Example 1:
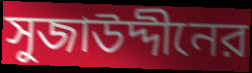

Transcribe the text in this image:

সুজাউদ্দীনের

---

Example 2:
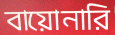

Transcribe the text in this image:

বায়োনারি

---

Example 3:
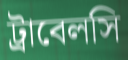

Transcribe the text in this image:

ট্রাবেলসি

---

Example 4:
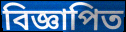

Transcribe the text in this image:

বিজ্ঞাপিত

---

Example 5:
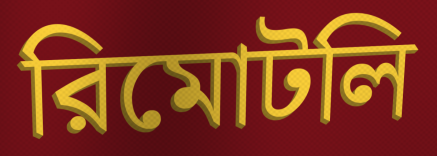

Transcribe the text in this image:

রিমোটলি